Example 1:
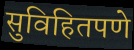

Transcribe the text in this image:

सुविहितपणे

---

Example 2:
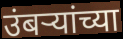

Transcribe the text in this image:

उंबऱ्यांच्या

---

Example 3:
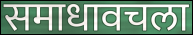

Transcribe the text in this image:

समाधावचला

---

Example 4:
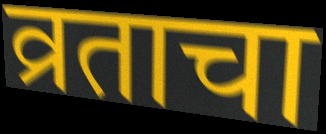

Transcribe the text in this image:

व्रताचा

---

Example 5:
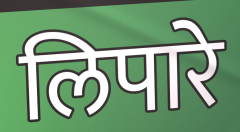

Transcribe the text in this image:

लिपारे